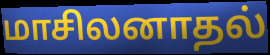
மாசிலனாதல்